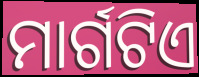
ମାର୍ଗଟିଏ